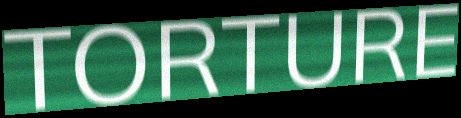
TORTURE